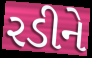
રડીને